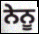
ਨੇਨੂ